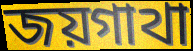
জয়গাথা